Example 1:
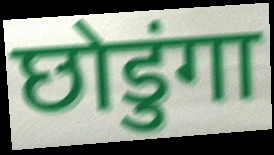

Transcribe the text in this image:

छोडुंगा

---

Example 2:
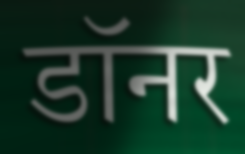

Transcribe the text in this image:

डॉनर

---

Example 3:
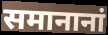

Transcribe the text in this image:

समानानां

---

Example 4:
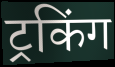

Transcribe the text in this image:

ट्रकिंग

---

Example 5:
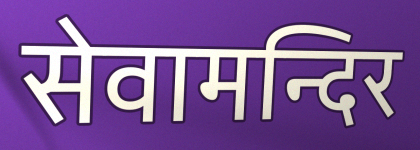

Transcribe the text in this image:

सेवामन्दिर